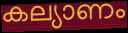
കല്യാണം